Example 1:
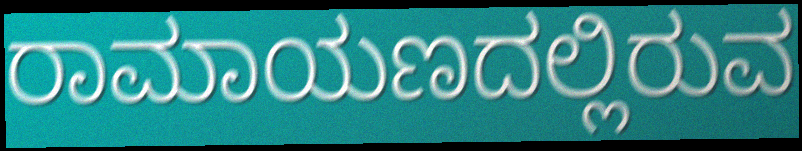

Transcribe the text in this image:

ರಾಮಾಯಣದಲ್ಲಿರುವ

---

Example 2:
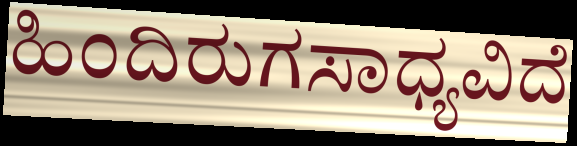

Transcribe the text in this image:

ಹಿಂದಿರುಗಸಾಧ್ಯವಿದೆ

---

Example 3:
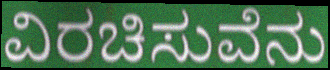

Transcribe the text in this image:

ವಿರಚಿಸುವೆನು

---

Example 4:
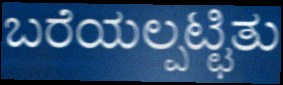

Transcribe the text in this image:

ಬರೆಯಲ್ಪಟ್ಟಿತು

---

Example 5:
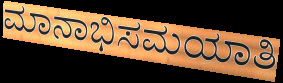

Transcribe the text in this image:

ಮಾನಾಭಿಸಮಯಾತಿ